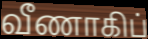
வீணாகிப்